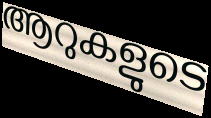
ആറുകളുടെ